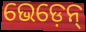
ଭେଡ଼େନ୍